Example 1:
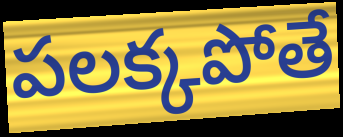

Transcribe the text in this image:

పలక్కపోతే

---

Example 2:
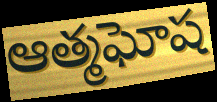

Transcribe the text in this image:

ఆత్మఘోష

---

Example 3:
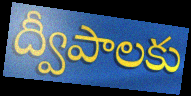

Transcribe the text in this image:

ద్వీపాలకు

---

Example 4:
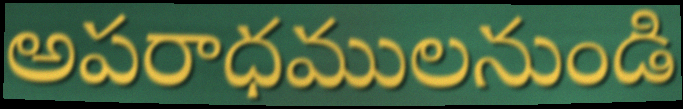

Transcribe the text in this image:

అపరాధములనుండి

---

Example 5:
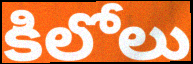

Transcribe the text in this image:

కిలోలు